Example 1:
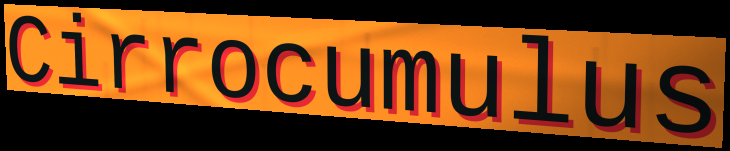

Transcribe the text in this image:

Cirrocumulus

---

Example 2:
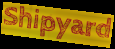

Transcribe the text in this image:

Shipyard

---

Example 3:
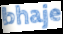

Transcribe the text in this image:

bhaje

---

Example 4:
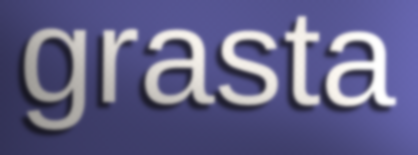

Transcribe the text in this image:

grasta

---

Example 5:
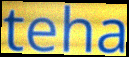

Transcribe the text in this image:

teha